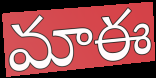
మాఈ